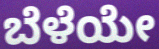
ಬೆಳೆಯೇ